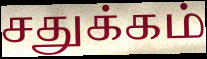
சதுக்கம்